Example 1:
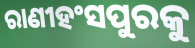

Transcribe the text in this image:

ରାଣୀହଂସପୁରକୁ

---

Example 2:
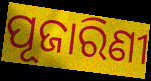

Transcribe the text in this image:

ପୂଜାରିଣୀ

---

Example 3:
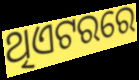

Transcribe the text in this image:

ଥିଏଟରରେ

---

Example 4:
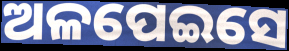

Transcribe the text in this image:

ଅଳପେଇସେ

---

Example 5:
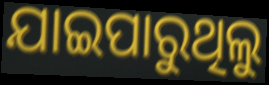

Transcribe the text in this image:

ଯାଇପାରୁଥିଲୁ